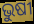
ଭୁଷୀ